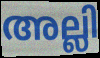
അല്ലി